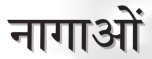
नागाओं